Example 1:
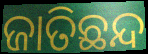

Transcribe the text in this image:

ଜାତିଛନ୍ଦ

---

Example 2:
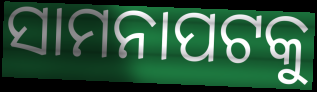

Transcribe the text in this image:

ସାମନାପଟକୁ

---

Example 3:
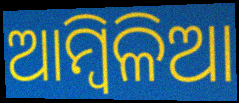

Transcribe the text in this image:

ଆମ୍ୱିଳିଆ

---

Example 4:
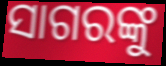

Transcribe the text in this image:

ସାଗରଙ୍କୁ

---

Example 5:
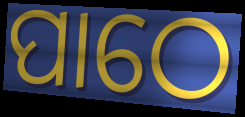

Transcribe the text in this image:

ପାଠେ